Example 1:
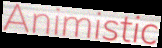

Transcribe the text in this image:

Animistic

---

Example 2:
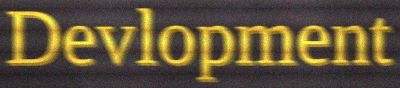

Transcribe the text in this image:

Devlopment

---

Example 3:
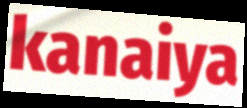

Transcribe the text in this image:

kanaiya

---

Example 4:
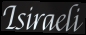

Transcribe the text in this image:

Isiraeli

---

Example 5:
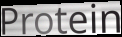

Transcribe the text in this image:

Protein